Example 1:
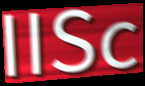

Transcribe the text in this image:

IISc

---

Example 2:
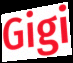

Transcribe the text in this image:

Gigi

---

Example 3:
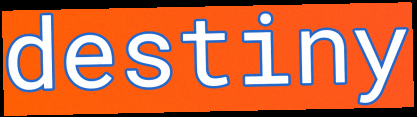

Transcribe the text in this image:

destiny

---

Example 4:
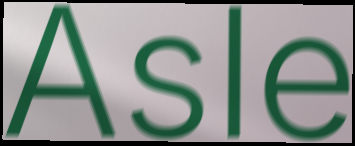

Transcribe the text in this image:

Asle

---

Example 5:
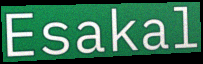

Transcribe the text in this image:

Esakal